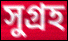
সুগ্রহ